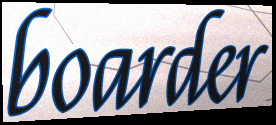
boarder